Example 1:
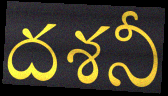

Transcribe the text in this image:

దశనీ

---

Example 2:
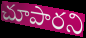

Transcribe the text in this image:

చూపారని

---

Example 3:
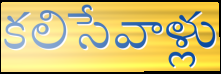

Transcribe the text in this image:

కలిసేవాళ్లు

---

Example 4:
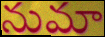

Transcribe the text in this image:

నుమా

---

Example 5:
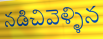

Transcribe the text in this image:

నడిచివెళ్ళిన